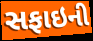
સફાઇની